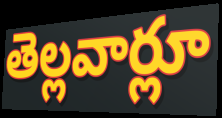
తెల్లవార్లూ